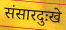
संसारदुःखे